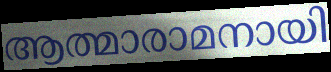
ആത്മാരാമനായി